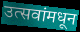
उत्सवांमधून